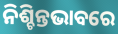
ନିଶ୍ଚିନ୍ତଭାବରେ